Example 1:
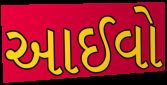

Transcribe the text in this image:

આઈવો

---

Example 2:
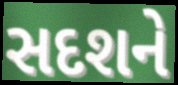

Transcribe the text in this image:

સદશને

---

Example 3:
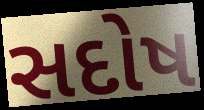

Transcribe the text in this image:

સદોષ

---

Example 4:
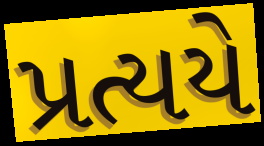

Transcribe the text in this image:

પ્રત્યયે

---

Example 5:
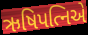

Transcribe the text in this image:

ઋષિપત્નિએ